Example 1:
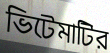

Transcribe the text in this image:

ভিটেমাটির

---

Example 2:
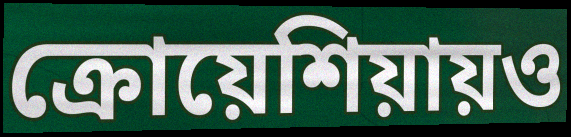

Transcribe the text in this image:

ক্রোয়েশিয়ায়ও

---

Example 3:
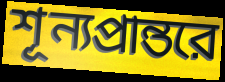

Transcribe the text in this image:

শূন্যপ্রান্তরে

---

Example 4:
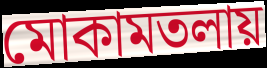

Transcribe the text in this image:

মোকামতলায়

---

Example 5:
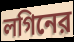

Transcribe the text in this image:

লগিনের